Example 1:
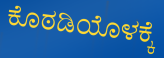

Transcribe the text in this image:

ಕೊಠಡಿಯೊಳಕ್ಕೆ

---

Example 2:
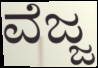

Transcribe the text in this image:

ವೆಜ್ಜ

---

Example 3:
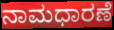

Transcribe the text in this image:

ನಾಮಧಾರಣೆ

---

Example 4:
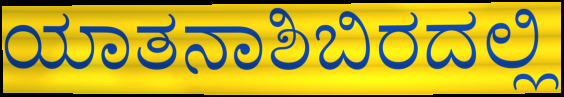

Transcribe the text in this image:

ಯಾತನಾಶಿಬಿರದಲ್ಲಿ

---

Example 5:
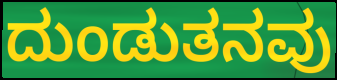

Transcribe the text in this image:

ದುಂಡುತನವು